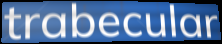
trabecular